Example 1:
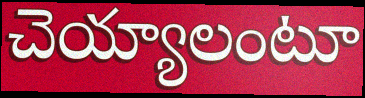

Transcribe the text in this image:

చెయ్యాలంటూ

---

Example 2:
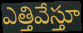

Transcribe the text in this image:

ఎత్తివేస్తూ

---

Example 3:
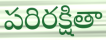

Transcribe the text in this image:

పరిరక్షితా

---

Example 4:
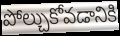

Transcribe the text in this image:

పోల్చుకోవడానికి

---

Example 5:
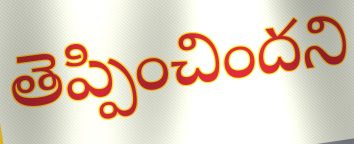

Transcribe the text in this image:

తెప్పించిందని